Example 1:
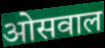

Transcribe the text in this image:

ओसवाल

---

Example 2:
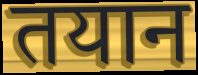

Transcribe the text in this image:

तयान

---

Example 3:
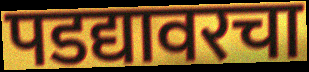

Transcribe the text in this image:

पडद्यावरचा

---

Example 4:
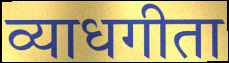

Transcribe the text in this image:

व्याधगीता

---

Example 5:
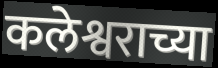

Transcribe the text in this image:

कलेश्वराच्या